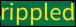
rippled